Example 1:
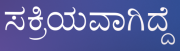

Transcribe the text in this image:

ಸಕ್ರಿಯವಾಗಿದ್ದೆ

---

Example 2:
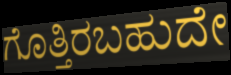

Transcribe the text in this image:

ಗೊತ್ತಿರಬಹುದೇ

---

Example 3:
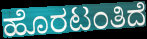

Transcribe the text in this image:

ಹೊರಟಂತಿದೆ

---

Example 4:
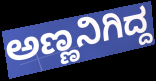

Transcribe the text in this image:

ಅಣ್ಣನಿಗಿದ್ದ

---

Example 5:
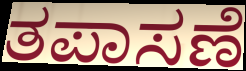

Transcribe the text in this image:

ತಪಾಸಣೆ